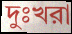
দুঃখরা